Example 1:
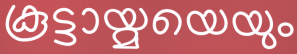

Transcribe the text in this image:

കൂട്ടായ്മയെയും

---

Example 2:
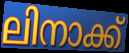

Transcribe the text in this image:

ലിനാക്ക്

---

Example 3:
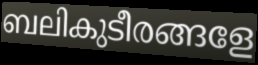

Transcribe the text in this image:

ബലികുടീരങ്ങളേ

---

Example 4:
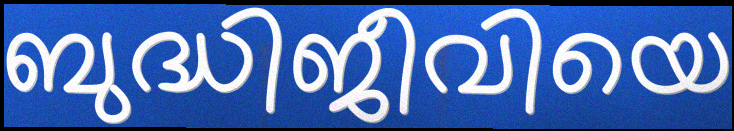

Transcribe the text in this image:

ബുദ്ധിജീവിയെ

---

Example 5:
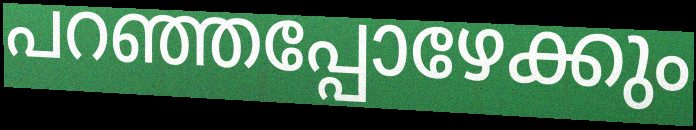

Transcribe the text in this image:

പറഞ്ഞപ്പോഴേക്കും